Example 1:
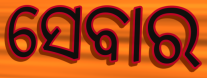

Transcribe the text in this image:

ସେବାର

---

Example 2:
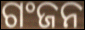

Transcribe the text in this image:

ଗଂଜନ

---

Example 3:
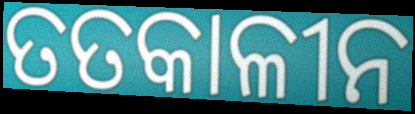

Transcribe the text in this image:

ତତକାଳୀନ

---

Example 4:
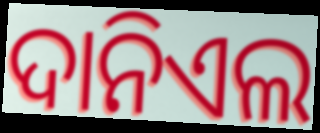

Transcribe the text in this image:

ଦାନିଏଲ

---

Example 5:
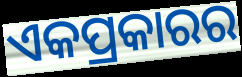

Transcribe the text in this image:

ଏକପ୍ରକାରର